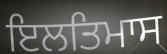
ਇਲਤਿਮਾਸ